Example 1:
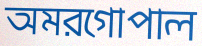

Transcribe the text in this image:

অমরগোপাল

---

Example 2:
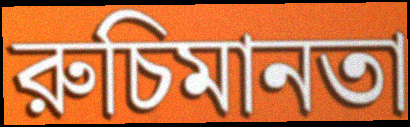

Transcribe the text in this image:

রুচিমানতা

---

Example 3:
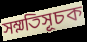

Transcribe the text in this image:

সম্মতিসূচক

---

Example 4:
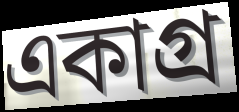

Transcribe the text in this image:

একাগ্র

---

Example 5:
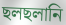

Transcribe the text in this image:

ছলছলানি